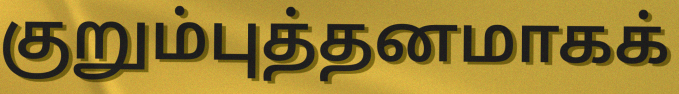
குறும்புத்தனமாகக்